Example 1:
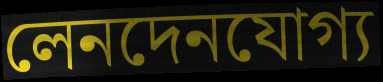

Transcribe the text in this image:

লেনদেনযোগ্য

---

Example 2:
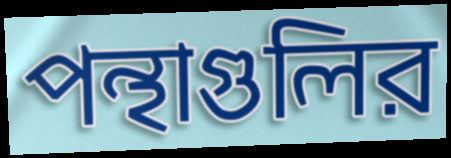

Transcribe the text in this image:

পন্থাগুলির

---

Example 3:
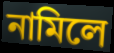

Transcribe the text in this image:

নামিলে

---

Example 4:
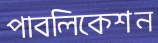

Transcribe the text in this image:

পাবলিকেশন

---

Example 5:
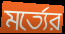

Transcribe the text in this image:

মর্ত্যের